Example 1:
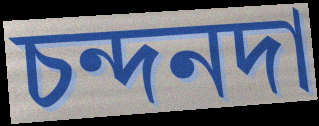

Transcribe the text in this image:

চন্দনদা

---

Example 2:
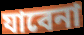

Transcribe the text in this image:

যাবেনা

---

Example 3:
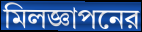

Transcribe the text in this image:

মিলজ্ঞাপনের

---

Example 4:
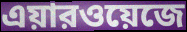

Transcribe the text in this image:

এয়ারওয়েজে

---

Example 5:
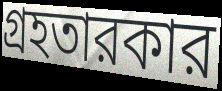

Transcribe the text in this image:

গ্রহতারকার